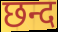
छन्द